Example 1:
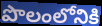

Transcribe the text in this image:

పొలంలోనికి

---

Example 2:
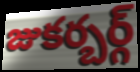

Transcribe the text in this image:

జుకర్బర్గ్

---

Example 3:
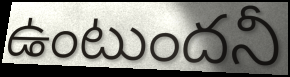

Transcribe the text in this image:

ఉంటుందనీ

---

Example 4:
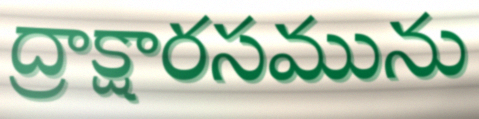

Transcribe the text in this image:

ద్రాక్షారసమును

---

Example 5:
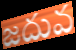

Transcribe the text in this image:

జదువ